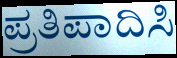
ಪ್ರತಿಪಾದಿಸಿ